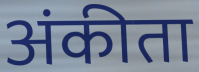
अंकीता